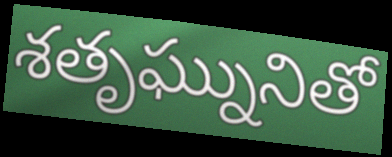
శతృఘ్నునితో